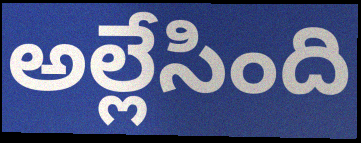
అల్లేసింది